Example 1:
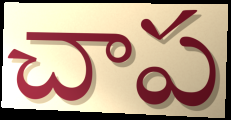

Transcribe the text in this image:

చాప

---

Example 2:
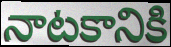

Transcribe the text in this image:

నాటకానికి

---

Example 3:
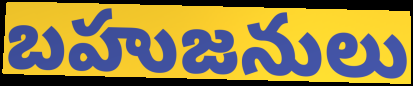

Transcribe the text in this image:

బహుజనులు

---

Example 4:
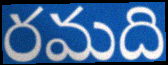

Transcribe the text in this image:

రమది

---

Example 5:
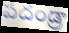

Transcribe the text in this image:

పదండ్రా